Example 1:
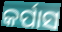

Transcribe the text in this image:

କର୍ପାସ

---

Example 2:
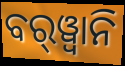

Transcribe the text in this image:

ବର୍‍ୱ୍ୱାନି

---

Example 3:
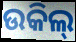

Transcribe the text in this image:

ଉକିଲ୍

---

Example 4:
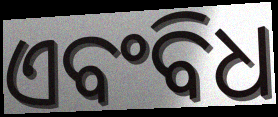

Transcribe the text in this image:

ଏବଂବିଧ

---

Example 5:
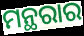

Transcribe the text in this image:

ମନ୍ଥରାର